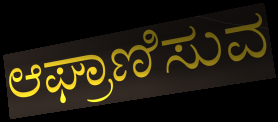
ಆಘ್ರಾಣಿಸುವ